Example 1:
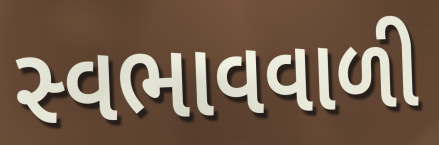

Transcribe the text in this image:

સ્વભાવવાળી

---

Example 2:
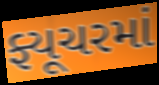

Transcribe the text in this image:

ફ્યૂચરમાં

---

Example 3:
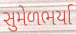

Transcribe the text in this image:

સુમેળભર્યા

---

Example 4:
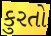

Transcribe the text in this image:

કુરતો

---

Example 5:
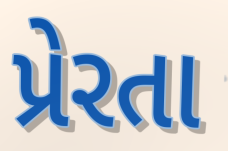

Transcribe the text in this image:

પ્રેરતા